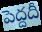
పెద్దదీ